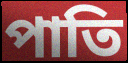
পাতি